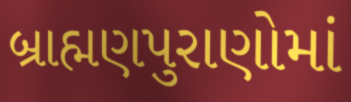
બ્રાહ્મણપુરાણોમાં